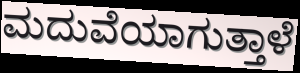
ಮದುವೆಯಾಗುತ್ತಾಳೆ